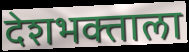
देशभक्ताला